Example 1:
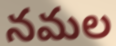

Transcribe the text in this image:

నమల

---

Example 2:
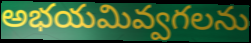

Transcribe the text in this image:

అభయమివ్వగలను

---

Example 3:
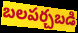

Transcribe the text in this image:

బలపర్చబడి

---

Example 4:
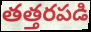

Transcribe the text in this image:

తత్తరపడి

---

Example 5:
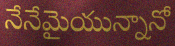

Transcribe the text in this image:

నేనేమైయున్నానో